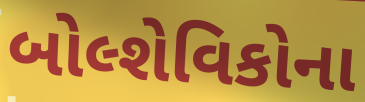
બોલ્શેવિકોના